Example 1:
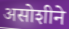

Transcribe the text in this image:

असोशीने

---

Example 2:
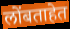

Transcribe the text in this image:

लोंबताहेत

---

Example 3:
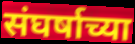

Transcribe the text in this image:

संघर्षाच्या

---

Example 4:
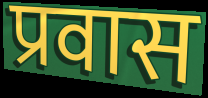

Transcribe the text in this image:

प्रवास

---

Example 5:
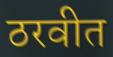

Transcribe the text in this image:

ठरवीत